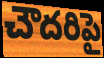
చౌదరిపై